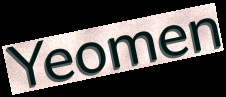
Yeomen